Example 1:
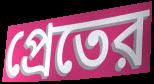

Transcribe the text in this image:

প্রেতের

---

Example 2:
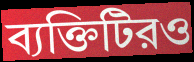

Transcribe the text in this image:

ব্যক্তিটিরও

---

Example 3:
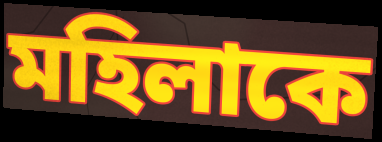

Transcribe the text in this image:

মহিলাকে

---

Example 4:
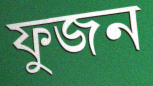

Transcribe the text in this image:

ফুজন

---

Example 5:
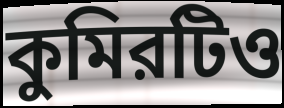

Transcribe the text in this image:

কুমিরটিও